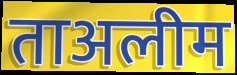
ताअलीम